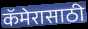
कॅमेरासाठी